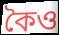
কৈও